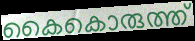
കൈകൊരുത്ത്